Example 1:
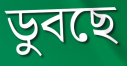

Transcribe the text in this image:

ডুবছে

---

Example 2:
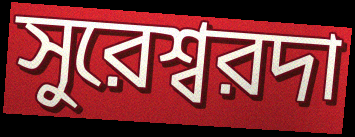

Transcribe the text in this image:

সুরেশ্বরদা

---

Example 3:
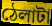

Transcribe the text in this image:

ঠেলাটা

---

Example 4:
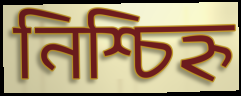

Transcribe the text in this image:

নিশ্চিহ্ন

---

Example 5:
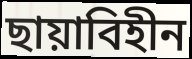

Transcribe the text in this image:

ছায়াবিহীন